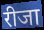
रीजा